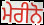
ਮੇਰੀਨੋ